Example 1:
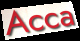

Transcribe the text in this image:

Acca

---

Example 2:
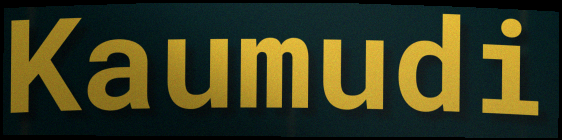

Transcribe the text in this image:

Kaumudi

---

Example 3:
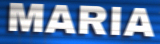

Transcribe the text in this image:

MARIA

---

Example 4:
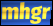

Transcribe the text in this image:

mhgr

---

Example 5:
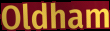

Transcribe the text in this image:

Oldham